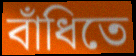
বাঁধিতে